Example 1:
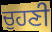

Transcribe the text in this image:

ਚੁਹਣੀ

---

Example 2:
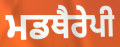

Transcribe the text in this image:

ਮਡਥੈਰੇਪੀ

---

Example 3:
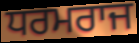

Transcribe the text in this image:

ਧਰਮਰਾਜ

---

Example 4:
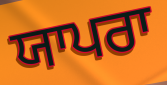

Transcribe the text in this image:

ਯਾਪਰਾ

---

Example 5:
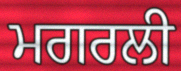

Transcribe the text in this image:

ਮਗਰਲੀ